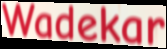
Wadekar